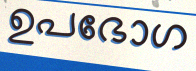
ഉപഭോഗ